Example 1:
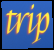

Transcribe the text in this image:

trip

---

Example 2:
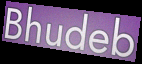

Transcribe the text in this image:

Bhudeb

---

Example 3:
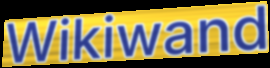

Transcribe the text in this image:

Wikiwand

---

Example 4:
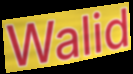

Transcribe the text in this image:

Walid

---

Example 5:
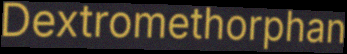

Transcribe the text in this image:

Dextromethorphan